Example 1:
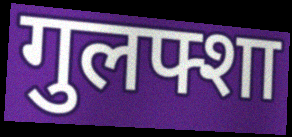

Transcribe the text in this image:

गुलफ्शा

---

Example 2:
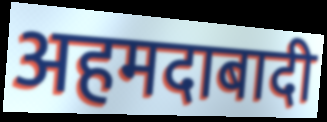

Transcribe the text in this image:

अहमदाबादी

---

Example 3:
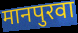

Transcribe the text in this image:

मानपुरवा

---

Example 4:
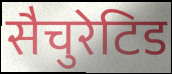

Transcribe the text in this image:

सैचुरेटिड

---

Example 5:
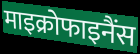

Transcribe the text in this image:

माइक्रोफाइनैंस